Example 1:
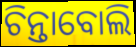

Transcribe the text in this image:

ଚିନ୍ତାବୋଲି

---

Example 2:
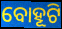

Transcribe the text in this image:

ବୋହୂଟି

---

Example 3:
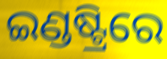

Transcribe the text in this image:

ଇଣ୍ଡଷ୍ଟ୍ରିରେ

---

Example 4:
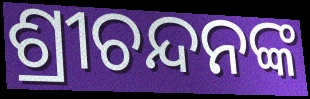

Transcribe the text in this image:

ଶ୍ରୀଚନ୍ଦନଙ୍କ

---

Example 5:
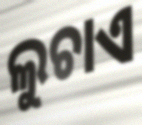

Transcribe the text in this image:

ଲୁଚାଏ